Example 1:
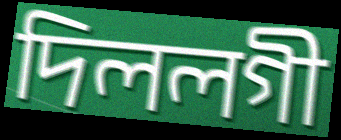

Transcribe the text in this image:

দিললগী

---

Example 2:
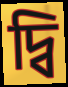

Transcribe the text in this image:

দ্বি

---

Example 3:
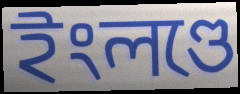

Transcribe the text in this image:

ইংলণ্ডে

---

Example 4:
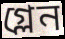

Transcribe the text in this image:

গ্লেন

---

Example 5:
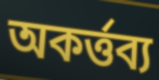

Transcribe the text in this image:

অকর্ত্তব্য